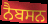
ਨੈਬਸਨ